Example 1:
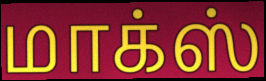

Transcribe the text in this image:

மாக்ஸ்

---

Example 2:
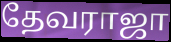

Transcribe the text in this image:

தேவராஜா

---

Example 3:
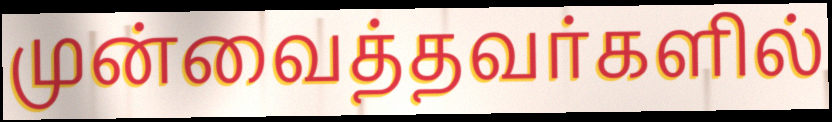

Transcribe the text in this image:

முன்வைத்தவர்களில்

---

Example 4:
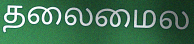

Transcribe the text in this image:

தலைமைல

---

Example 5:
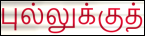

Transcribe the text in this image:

புல்லுக்குத்